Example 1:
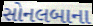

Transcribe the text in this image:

સોનલબાના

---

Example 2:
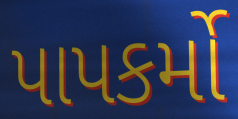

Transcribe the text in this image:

પાપકર્મો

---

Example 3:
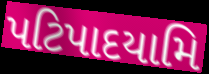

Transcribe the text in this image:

પટિપાદયામિ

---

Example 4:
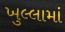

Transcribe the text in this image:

ખુલ્લામાં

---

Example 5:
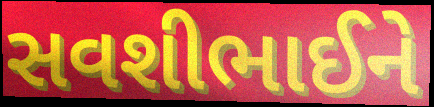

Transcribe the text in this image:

સવશીભાઈને